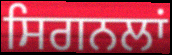
ਸਿਗਨਲਾਂ